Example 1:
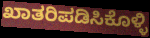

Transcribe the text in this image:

ಖಾತರಿಪಡಿಸಿಕೊಳ್ಳಿ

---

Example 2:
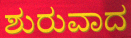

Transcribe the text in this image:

ಶುರುವಾದ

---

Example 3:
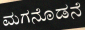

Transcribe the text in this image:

ಮಗನೊಡನೆ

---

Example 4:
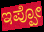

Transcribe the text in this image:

ಇಪ್ಪೋ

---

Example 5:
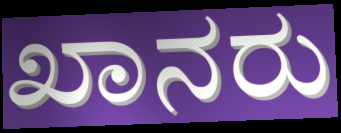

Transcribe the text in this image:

ಖಾನರು